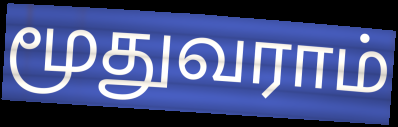
மூதுவராம்